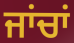
ਜਾਂਚਾਂ